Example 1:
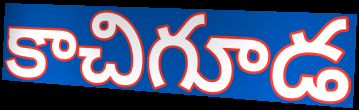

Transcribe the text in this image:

కాచిగూడ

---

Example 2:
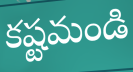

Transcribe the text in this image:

కష్టమండి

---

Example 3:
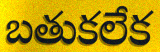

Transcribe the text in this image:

బతుకలేక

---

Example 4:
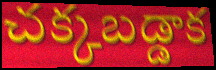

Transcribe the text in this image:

చక్కబడ్డాక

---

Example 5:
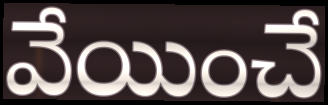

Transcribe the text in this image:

వేయించే